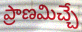
ప్రాణమిచ్చే